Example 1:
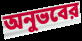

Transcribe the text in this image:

অনুভবের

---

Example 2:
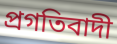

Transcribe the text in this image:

প্রগতিবাদী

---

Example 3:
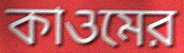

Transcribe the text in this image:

কাওমের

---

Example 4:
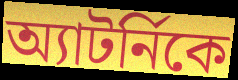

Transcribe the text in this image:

অ্যাটর্নিকে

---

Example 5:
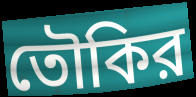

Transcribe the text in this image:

তৌকির